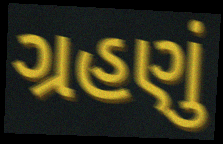
ગ્રહણું